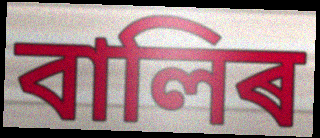
বালিৰ